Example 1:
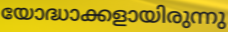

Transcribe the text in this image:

യോദ്ധാക്കളായിരുന്നു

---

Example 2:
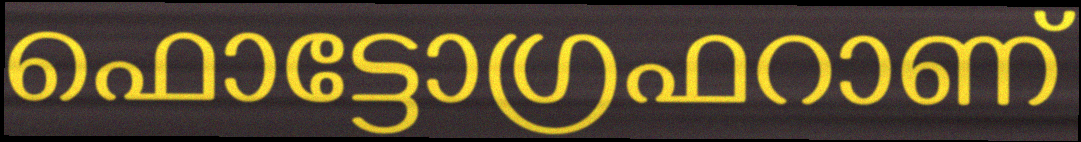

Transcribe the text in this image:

ഫൊട്ടോഗ്രഫറാണ്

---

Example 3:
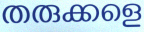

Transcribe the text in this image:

തരുക്കളെ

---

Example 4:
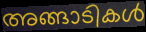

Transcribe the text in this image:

അങ്ങാടികൾ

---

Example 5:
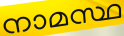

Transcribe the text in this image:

നാമസ്ഥ